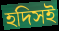
হদিসই